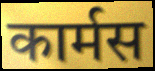
कार्मस